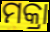
ମକ୍ରା